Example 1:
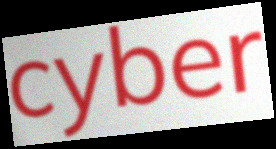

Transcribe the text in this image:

cyber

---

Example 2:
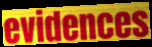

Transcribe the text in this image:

evidences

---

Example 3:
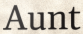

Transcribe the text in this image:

Aunt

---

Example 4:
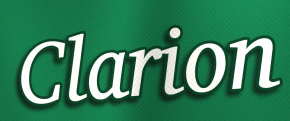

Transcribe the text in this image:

Clarion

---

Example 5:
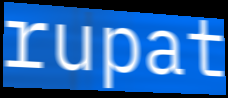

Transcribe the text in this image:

rupat